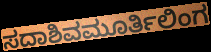
ಸದಾಶಿವಮೂರ್ತಿಲಿಂಗ